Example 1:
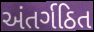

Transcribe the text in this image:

અંતર્ગઠિત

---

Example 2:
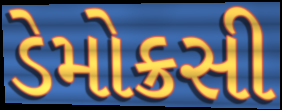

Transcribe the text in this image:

ડેમોક્રસી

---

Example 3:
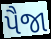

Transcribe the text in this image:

પૈજા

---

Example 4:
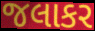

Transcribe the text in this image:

જલાકર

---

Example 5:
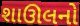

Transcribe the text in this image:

શાઊલનો